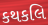
કથકલિ